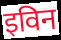
इविन